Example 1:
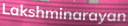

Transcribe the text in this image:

Lakshminarayan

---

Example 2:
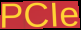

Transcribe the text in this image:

PCIe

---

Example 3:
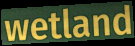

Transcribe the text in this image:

wetland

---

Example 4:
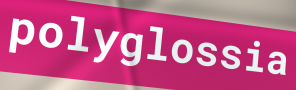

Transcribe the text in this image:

polyglossia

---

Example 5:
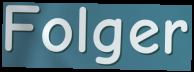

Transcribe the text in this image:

Folger